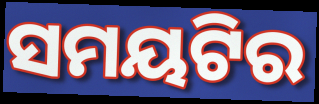
ସମୟଟିର